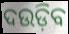
ଦଉଡ଼ିବ